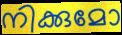
നിക്കുമോ